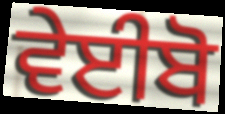
ਵੇਈਬੋ